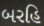
બરહિ